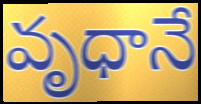
వృధానే